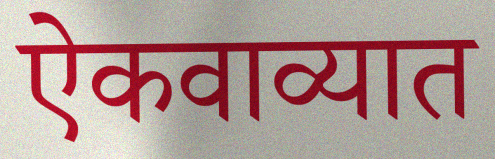
ऐकवाव्यात